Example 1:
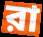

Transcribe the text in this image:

রা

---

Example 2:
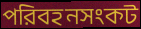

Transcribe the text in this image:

পরিবহনসংকট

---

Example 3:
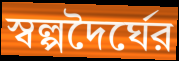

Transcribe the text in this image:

স্বল্পদৈর্ঘের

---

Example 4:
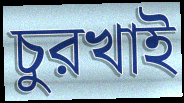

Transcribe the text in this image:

চুরখাই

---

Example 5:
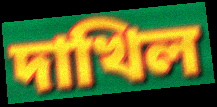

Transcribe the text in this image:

দাখিল